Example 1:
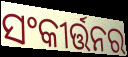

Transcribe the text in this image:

ସଂକୀର୍ତ୍ତନର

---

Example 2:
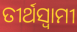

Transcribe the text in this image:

ତୀର୍ଥସ୍ୱାମୀ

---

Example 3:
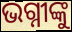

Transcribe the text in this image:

ଭଗ୍ନୀଙ୍କୁ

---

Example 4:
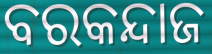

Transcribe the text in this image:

ବରକନ୍ଦାଜ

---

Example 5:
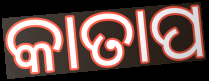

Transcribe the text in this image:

କାତାପ